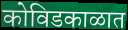
कोविडकाळात